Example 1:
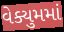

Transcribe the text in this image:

વેક્યુમમાં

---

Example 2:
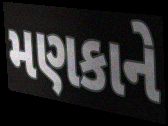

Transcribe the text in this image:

મણકાને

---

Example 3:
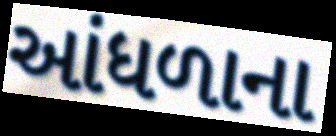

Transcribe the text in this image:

આંધળાના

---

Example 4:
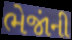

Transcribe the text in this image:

ભેજાંની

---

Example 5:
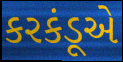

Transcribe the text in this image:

કરકંડૂએ